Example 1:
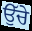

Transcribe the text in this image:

ਉੱਚੇ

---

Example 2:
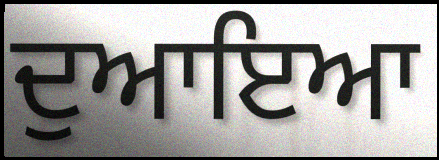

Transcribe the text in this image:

ਦੁਆਇਆ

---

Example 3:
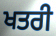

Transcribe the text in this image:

ਖਤਰੀ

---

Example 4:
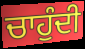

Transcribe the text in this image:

ਚਾਹੁੰਦੀ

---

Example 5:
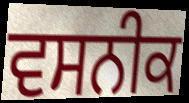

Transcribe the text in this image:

ਵਸਨੀਕ